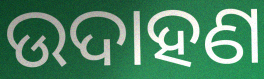
ଉଦାହଣ